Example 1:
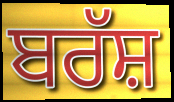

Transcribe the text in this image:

ਬਰੱਸ਼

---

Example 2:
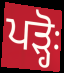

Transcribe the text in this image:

ਪੜ੍ਹੋਃ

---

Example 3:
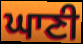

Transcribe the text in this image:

ਘਾਣੀ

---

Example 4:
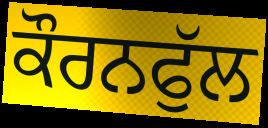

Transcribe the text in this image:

ਕੌਰਨਫੁੱਲ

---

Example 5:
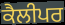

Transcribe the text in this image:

ਕੈਲੀਪਰ